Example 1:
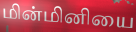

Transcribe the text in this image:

மின்மினியை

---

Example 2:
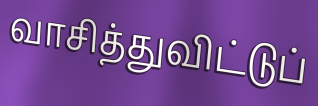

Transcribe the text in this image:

வாசித்துவிட்டுப்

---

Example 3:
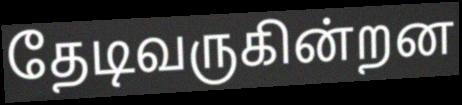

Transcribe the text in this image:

தேடிவருகின்றன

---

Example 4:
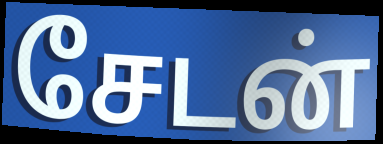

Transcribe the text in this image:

சேடன்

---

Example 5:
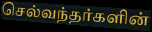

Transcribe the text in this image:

செல்வந்தர்களின்